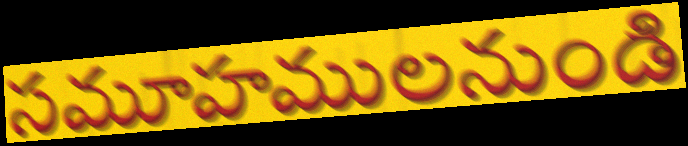
సమూహములనుండి